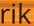
rik